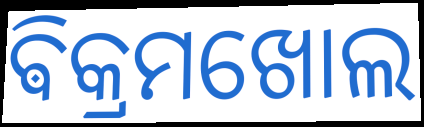
ଵିକ୍ରମଖୋଲ